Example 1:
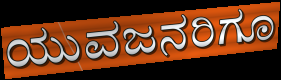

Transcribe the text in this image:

ಯುವಜನರಿಗೂ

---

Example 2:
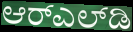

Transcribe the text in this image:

ಆರ್‌ಎಲ್‌ಡಿ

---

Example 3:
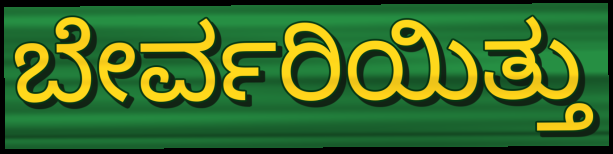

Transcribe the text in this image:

ಬೇರ್ವರಿಯಿತ್ತು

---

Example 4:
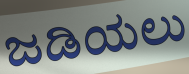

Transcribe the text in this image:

ಜಡಿಯಲು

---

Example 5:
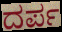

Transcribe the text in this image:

ದರ್ಪ